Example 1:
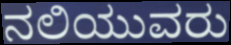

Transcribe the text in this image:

ನಲಿಯುವರು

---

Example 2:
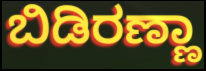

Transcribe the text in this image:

ಬಿಡಿರಣ್ಣಾ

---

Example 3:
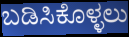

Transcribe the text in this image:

ಬಡಿಸಿಕೊಳ್ಳಲು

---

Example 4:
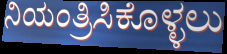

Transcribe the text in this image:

ನಿಯಂತ್ರಿಸಿಕೊಳ್ಳಲು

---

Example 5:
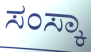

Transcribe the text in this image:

ಸಂಸ್ಕಾ